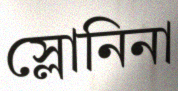
স্লোনিনা